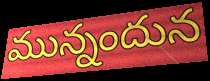
మున్నందున